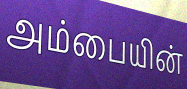
அம்பையின்